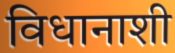
विधानाशी